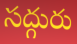
సద్గురు